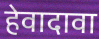
हेवादावा